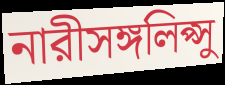
নারীসঙ্গলিপ্সু